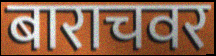
बाराचवर